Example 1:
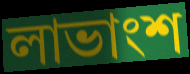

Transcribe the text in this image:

লাভাংশ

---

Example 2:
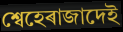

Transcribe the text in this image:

শ্বেহেৰাজাদেই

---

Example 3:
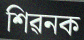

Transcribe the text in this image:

শিৱনক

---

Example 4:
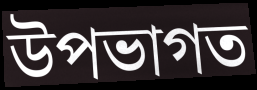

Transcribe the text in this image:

উপভাগত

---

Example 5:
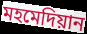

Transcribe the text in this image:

মহমেদিয়ান